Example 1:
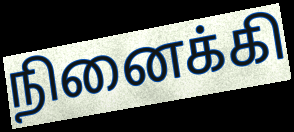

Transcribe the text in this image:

நினைக்கி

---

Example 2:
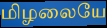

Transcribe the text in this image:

மிழலையே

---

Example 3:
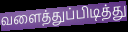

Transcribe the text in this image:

வளைத்துப்பிடித்து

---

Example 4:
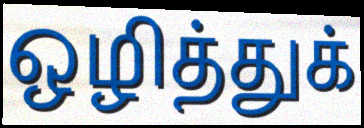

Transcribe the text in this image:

ஒழித்துக்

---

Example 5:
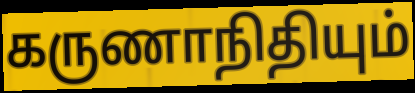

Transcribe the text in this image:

கருணாநிதியும்